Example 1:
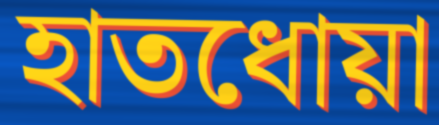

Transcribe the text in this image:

হাতধোয়া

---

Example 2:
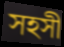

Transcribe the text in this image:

সহসী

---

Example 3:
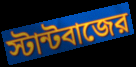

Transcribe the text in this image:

স্টান্টবাজের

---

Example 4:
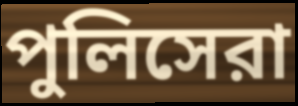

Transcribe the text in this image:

পুলিসেরা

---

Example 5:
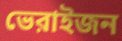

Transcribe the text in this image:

ভেরাইজন